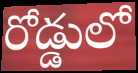
రోడ్డులో